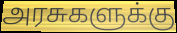
அரசுகளுக்கு